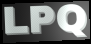
LPQ